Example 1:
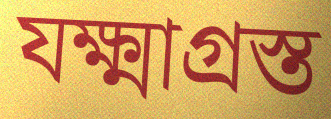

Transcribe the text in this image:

যক্ষ্মাগ্রস্ত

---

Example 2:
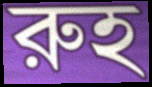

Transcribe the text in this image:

রুহ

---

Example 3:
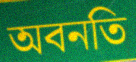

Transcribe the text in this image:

অবনতি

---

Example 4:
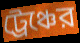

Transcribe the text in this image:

ট্রেঞ্চের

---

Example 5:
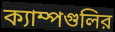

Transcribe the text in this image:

ক্যাম্পগুলির